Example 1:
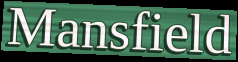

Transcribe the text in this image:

Mansfield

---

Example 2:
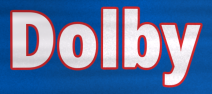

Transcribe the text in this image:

Dolby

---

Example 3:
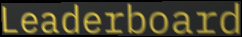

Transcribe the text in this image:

Leaderboard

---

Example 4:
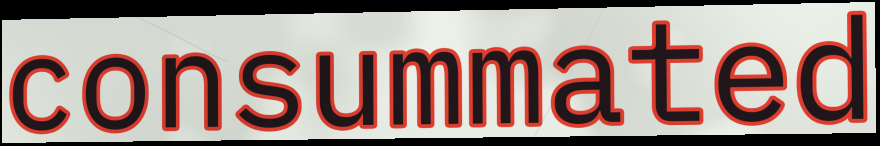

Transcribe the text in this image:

consummated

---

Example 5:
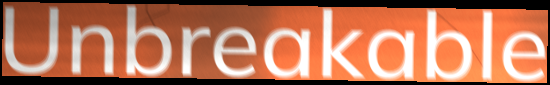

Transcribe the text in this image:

Unbreakable